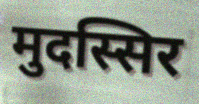
मुदस्सिर